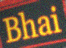
Bhai